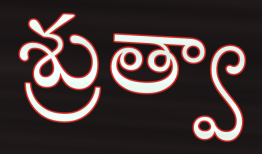
శ్రుత్వా